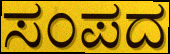
ಸಂಪದ